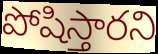
పోషిస్తారని